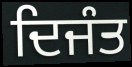
ਦਿਜੰਤ